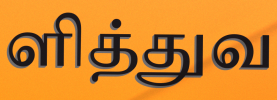
ளித்துவ